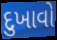
દુખાવો